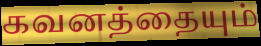
கவனத்தையும்